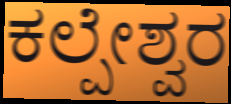
ಕಲ್ಪೇಶ್ವರ